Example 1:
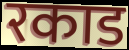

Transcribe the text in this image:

रकाड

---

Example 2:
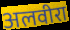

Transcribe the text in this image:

अलवीरा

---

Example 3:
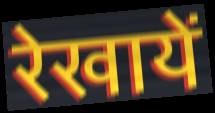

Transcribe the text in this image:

रेखायें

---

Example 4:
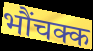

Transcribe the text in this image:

भौंचक्क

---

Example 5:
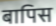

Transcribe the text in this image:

बापिस